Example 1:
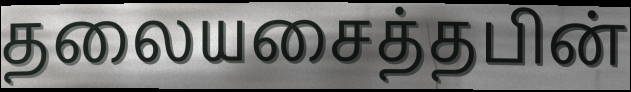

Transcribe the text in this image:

தலையசைத்தபின்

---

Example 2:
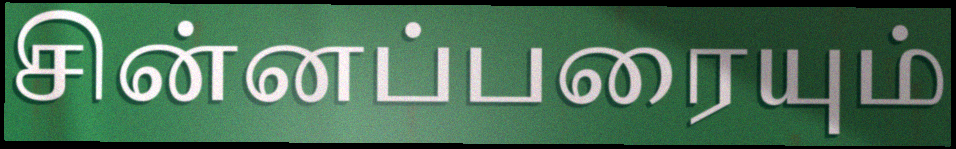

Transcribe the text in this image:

சின்னப்பரையும்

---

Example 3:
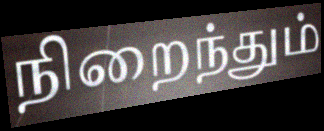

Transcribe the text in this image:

நிறைந்தும்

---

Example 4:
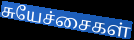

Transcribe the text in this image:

சுயேச்சைகள்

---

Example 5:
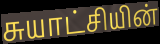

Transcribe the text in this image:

சுயாட்சியின்